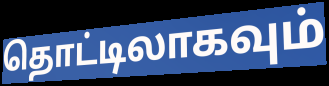
தொட்டிலாகவும்